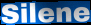
Silene